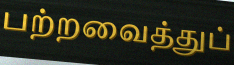
பற்றவைத்துப்